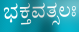
ಭಕ್ತವತ್ಸಲಃ